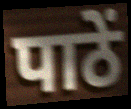
पाठें